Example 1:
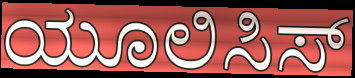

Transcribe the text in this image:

ಯೂಲಿಸಿಸ್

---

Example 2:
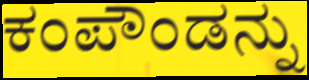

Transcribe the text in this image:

ಕಂಪೌಂಡನ್ನು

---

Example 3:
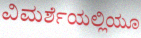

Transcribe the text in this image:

ವಿಮರ್ಶೆಯಲ್ಲಿಯೂ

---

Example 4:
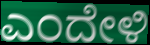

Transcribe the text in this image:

ಎಂದೇಳಿ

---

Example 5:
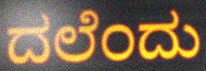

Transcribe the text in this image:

ದಲೆಂದು